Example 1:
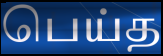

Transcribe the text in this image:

பெய்த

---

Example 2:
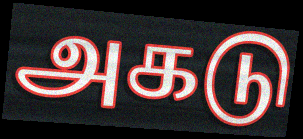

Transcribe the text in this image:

அகடு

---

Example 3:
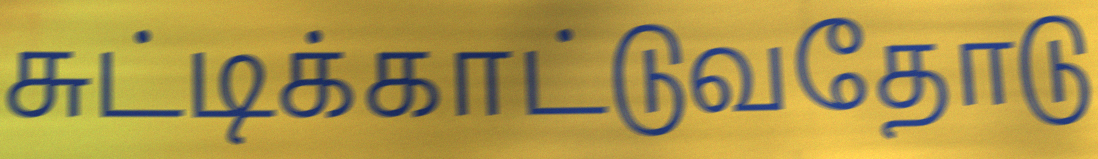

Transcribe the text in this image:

சுட்டிக்காட்டுவதோடு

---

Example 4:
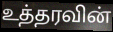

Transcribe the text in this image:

உத்தரவின்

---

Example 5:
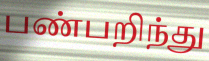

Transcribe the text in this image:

பண்பறிந்து